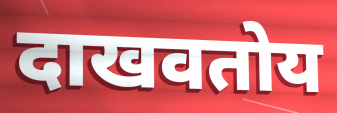
दाखवतोय